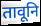
तावूनि